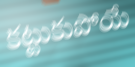
కట్టుకుపోయే